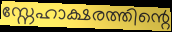
സ്നേഹാക്ഷരത്തിന്റെ